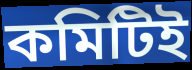
কমিটিই